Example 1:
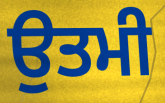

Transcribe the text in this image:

ਉਤਮੀ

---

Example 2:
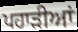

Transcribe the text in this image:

ਪਹਾਡ਼ੀਆਂ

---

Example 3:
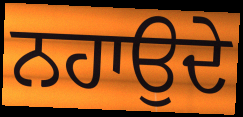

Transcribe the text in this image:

ਨਹਾਉਦੇ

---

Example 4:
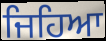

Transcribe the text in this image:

ਜਿਹਿਆ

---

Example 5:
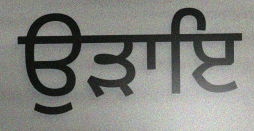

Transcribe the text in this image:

ਉੜਾਇ